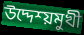
উদ্দেশ্য়মুখী